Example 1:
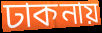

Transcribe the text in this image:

ঢাকনায়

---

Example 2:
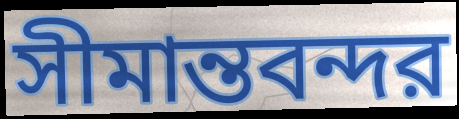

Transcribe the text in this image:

সীমান্তবন্দর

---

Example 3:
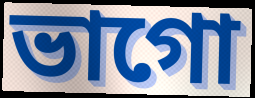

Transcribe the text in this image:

ভাগো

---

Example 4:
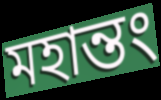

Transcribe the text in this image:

মহান্তং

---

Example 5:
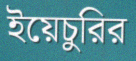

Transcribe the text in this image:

ইয়েচুরির